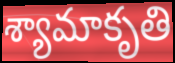
శ్యామాకృతి